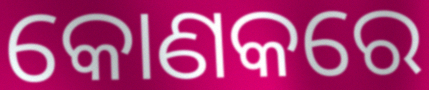
କୋଣକରେ